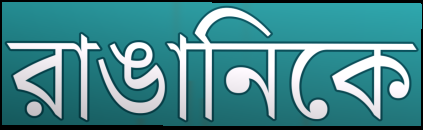
রাঙানিকে